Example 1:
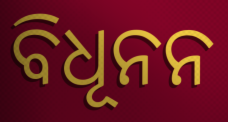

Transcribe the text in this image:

ବିଧୂନନ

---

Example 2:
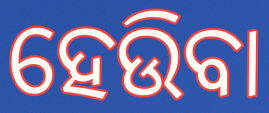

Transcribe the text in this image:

ହେଉିବା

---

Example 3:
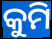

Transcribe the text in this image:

କୁମି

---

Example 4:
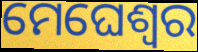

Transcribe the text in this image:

ମେଘେଶ୍ୱର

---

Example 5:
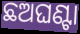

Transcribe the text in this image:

ଛଅଘଣ୍ଟା